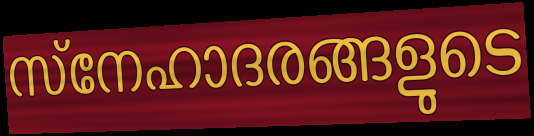
സ്‌നേഹാദരങ്ങളുടെ